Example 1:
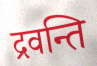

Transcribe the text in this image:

द्रवन्ति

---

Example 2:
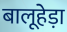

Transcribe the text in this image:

बालूहेड़ा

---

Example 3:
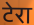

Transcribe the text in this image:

टेरा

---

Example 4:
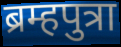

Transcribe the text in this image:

ब्रम्हपुत्रा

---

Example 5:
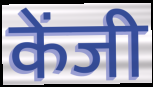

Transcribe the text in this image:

केंजी